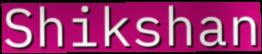
Shikshan